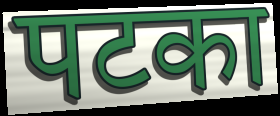
पटका